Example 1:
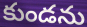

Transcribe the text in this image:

కుండను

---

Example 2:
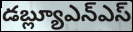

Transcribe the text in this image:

డబ్ల్యూఎన్ఎస్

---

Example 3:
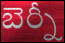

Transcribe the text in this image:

బెర్నీ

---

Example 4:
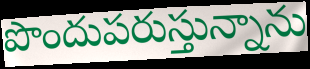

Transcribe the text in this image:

పొందుపరుస్తున్నాను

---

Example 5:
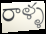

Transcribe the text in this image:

రాళ్ళ